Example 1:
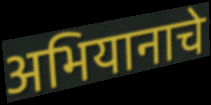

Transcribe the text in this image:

अभियानाचे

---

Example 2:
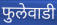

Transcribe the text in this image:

फुलेवाडी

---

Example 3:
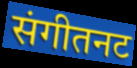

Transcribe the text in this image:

संगीतनट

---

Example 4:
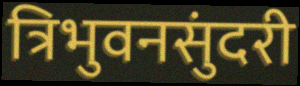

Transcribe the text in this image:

त्रिभुवनसुंदरी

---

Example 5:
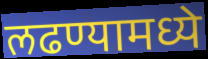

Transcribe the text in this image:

लढण्यामध्ये